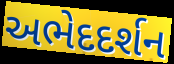
અભેદદર્શન